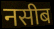
नसीब